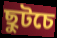
ছুটচে